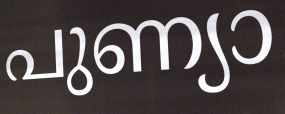
പുണ്യാ